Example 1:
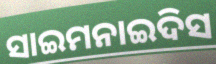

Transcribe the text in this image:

ସାଇମନାଇଦିସ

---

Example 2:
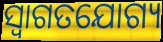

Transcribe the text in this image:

ସ୍ବାଗତଯୋଗ୍ୟ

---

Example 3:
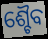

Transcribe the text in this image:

ଶ୍ଚୈବ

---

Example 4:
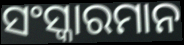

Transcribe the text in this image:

ସଂସ୍କାରମାନ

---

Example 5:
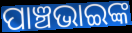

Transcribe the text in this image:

ପାଞ୍ଚଭାଇଙ୍କ